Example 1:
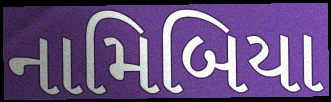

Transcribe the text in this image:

નામિબિયા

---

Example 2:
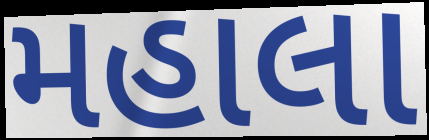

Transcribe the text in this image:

મહાલા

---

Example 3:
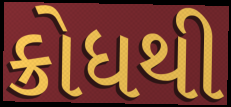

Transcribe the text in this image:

ક્રોધથી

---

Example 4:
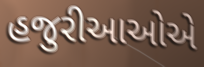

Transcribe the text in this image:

હજુરીઆઓએ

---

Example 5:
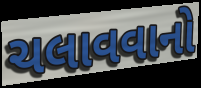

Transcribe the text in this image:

ચલાવવાનો